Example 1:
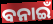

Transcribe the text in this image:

ବନାଇଁ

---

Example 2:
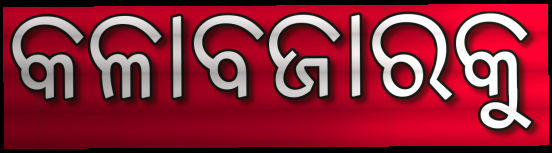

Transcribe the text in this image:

କଳାବଜାରକୁ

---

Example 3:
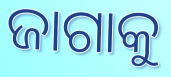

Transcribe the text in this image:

ଜାଗାକୁ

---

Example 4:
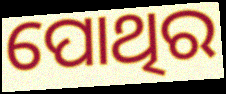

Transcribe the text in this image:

ପୋଥିର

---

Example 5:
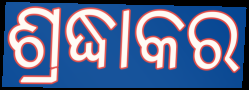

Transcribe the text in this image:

ଶ୍ରଦ୍ଧାକର